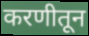
करणीतून